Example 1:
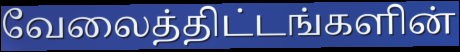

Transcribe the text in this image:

வேலைத்திட்டங்களின்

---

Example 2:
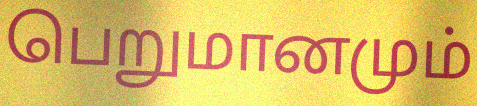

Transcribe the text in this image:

பெறுமானமும்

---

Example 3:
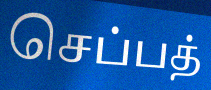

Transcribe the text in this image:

செப்பத்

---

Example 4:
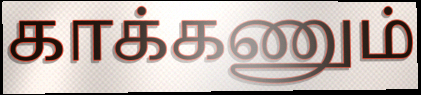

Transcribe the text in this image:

காக்கணும்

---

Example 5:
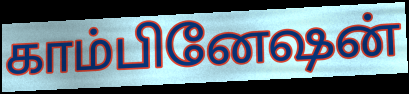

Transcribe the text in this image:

காம்பினேஷன்